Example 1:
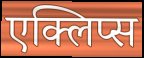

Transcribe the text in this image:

एक्लिप्स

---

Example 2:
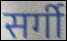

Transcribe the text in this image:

सर्गी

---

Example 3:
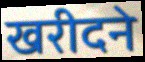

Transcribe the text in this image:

खरीदने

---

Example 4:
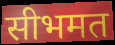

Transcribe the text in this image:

सीभमत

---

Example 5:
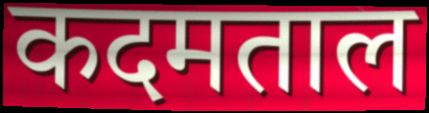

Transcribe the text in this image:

कदमताल